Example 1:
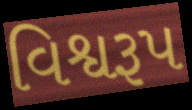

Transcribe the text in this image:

વિશ્વરૂપ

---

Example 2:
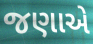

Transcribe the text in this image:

જણાએ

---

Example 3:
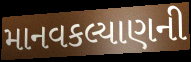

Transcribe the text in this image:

માનવકલ્યાણની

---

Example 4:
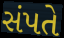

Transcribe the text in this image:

સંપતે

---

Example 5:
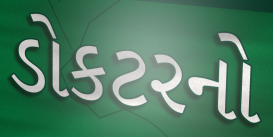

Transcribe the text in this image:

ડોકટરનો